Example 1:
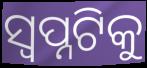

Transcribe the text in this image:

ସ୍ୱପ୍ନଟିକୁ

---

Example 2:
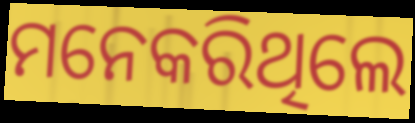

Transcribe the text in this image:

ମନେକରିଥିଲେ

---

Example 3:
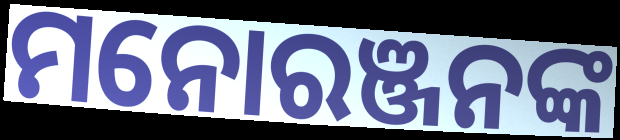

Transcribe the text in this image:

ମନୋରଞ୍ଜନଙ୍କ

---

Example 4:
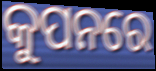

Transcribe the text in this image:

କୁପନରେ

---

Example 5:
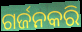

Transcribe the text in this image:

ଗର୍ଜନକରି